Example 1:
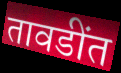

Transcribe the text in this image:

तावडींत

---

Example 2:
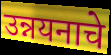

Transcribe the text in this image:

उन्नयनाचे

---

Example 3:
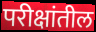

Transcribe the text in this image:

परीक्षांतील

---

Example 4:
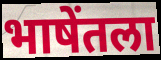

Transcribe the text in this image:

भाषेंतला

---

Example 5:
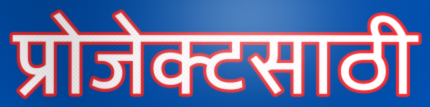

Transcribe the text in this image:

प्रोजेक्टसाठी